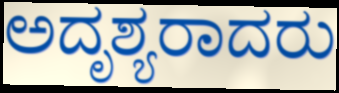
ಅದೃಶ್ಯರಾದರು